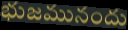
భుజమునందు